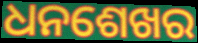
ଧନଶେଖର